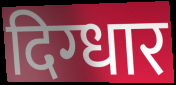
दिग्धार